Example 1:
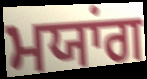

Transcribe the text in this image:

ਮਯਾਂਗ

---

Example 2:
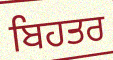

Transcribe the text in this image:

ਬਿਹਤਰ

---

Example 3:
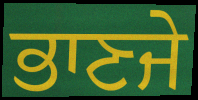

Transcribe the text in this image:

ਭਾਣਜੇ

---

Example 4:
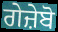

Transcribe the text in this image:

ਗੇਜ਼ੇਬੋ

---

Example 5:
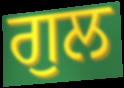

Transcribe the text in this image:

ਗੁਲ